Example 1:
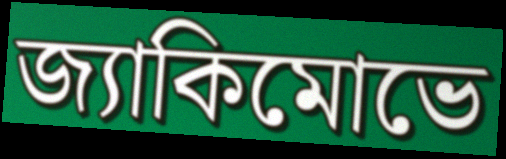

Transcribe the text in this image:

জ্যাকিমোভে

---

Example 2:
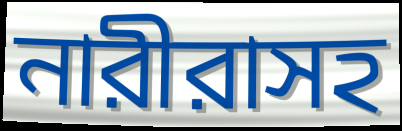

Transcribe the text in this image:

নারীরাসহ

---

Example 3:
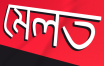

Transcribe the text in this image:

মেলত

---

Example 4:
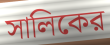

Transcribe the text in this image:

সালিকের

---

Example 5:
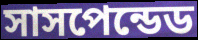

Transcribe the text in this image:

সাসপেন্ডেড